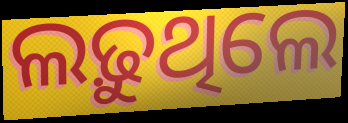
ଲଢ଼ୁଥିଲେ